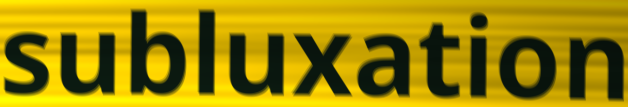
subluxation